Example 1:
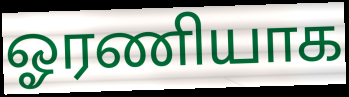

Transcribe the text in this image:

ஓரணியாக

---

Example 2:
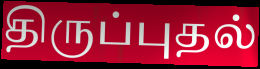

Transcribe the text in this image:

திருப்புதல்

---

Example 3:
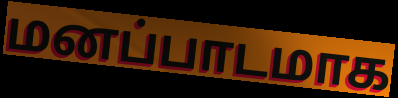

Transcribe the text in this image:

மனப்பாடமாக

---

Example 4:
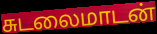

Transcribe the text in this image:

சுடலைமாடன்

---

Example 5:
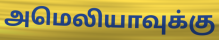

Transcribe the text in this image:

அமெலியாவுக்கு